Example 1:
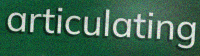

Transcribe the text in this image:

articulating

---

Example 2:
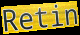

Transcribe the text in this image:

Retin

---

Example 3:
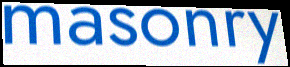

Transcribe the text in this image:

masonry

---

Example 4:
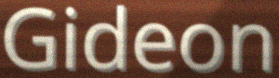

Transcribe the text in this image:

Gideon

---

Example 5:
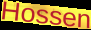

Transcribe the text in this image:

Hossen